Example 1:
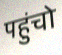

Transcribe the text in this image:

पहुंचो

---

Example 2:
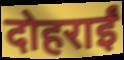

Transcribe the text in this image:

दोहराईं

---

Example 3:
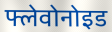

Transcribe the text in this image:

फ्लेवोनोइड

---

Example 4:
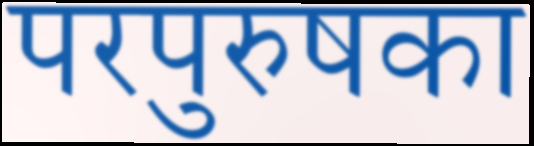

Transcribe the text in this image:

परपुरुषका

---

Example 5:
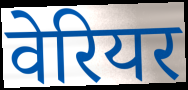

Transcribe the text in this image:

वेरियर